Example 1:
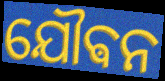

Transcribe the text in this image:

ଯୌଵନ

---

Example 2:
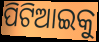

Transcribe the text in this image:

ପିଟିଆଇକୁ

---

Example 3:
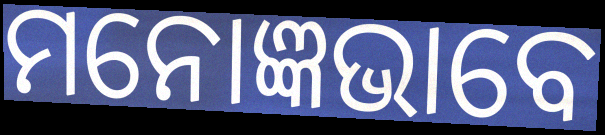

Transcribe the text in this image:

ମନୋଜ୍ଞଭାବେ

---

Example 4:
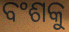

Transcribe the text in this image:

ବଂଶକୁ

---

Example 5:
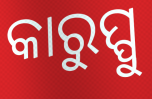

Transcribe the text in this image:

କାରୁପ୍ପୁ